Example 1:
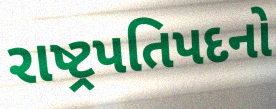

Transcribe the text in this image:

રાષ્ટ્રપતિપદનો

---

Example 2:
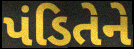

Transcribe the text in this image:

પંડિતેને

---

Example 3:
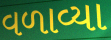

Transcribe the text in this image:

વળાવ્યા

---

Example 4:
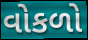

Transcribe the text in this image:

વોકળો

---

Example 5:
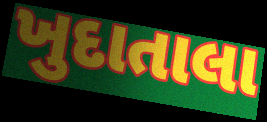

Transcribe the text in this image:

ખુદાતાલા